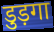
डुड़गा